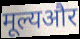
मूल्यऔर